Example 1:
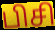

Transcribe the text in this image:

பிசி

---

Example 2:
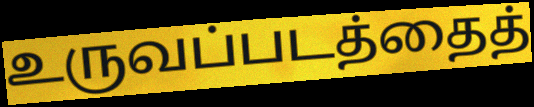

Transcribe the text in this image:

உருவப்படத்தைத்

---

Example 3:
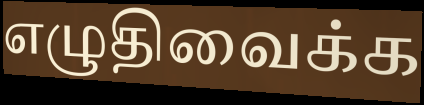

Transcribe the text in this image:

எழுதிவைக்க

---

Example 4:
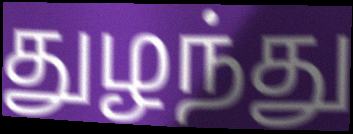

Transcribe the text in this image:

துழந்து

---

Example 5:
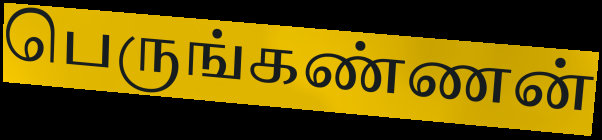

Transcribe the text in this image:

பெருங்கண்ணன்